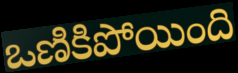
ఒణికిపోయింది